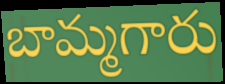
బామ్మగారు